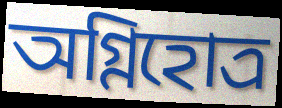
অগ্নিহোত্র